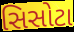
સિસોટા